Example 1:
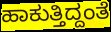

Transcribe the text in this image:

ಹಾಕುತ್ತಿದ್ದಂತೆ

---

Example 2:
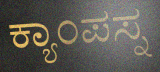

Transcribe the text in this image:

ಕ್ಯಾಂಪಸ್ನ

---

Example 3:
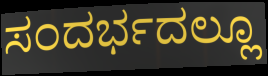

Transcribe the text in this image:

ಸಂದರ್ಭದಲ್ಲೂ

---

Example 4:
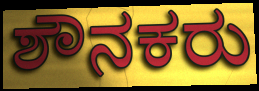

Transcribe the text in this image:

ಶೌನಕರು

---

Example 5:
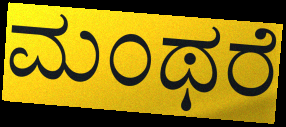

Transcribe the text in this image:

ಮಂಥರೆ